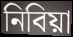
নিবিয়া